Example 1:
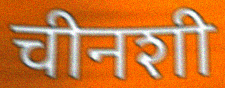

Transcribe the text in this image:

चीनशी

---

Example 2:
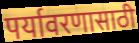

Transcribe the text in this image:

पर्यावरणासाठी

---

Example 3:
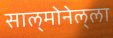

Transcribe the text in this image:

साल्मोनेल्ला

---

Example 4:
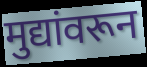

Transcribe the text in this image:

मुद्यांवरून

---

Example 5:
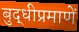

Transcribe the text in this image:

बुद्धीप्रमाणें